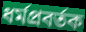
ধর্মপ্রবর্তক